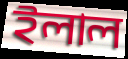
ইলাল